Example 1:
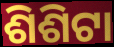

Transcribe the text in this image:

ଶିଶିଟା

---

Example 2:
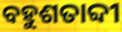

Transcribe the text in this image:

ବହୁଶତାବ୍ଦୀ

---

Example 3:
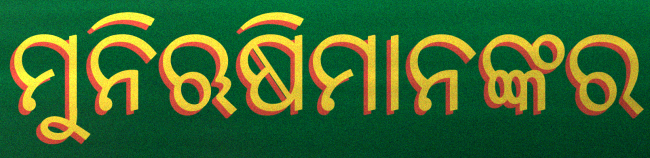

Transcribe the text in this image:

ମୁନିଋଷିମାନଙ୍କର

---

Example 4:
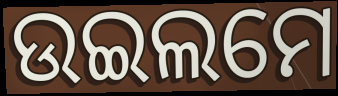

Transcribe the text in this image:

ଉଇଲମେ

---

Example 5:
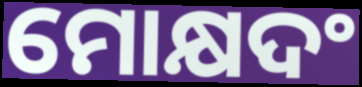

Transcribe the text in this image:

ମୋକ୍ଷଦଂ